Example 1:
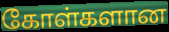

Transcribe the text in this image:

கோள்களான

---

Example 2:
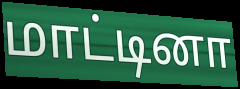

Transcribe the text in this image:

மாட்டினா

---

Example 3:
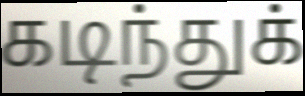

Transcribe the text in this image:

கடிந்துக்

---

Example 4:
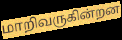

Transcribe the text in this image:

மாறிவருகின்றன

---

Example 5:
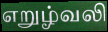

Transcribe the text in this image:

எறுழ்வலி